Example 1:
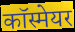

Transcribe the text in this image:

कॉस्मेयर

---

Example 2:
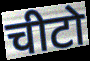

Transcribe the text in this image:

चीटो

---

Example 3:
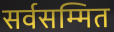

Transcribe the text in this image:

सर्वसम्मित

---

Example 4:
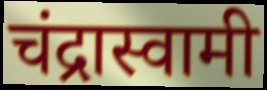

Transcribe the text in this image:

चंद्रास्वामी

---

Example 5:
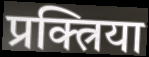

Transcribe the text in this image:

प्रक्त्रिया